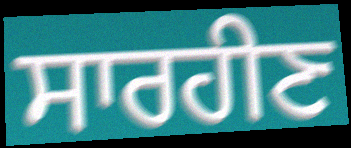
ਸਾਰਹੀਣ